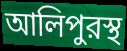
আলিপুরস্থ